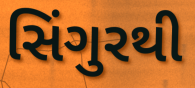
સિંગુરથી